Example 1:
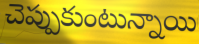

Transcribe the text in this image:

చెప్పుకుంటున్నాయి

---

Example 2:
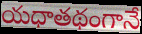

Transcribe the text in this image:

యధాతథంగానే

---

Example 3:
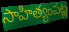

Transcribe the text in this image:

సాహిత్యంపట్ల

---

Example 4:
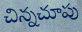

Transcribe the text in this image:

చిన్నచూపు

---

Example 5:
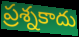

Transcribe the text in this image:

ప్రశ్నకాదు